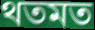
থতমত